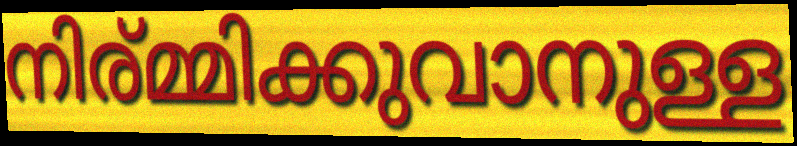
നിര്മ്മിക്കുവാനുള്ള